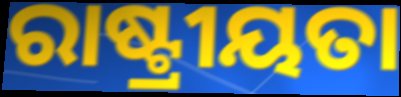
ରାଷ୍ଟ୍ରୀୟତା